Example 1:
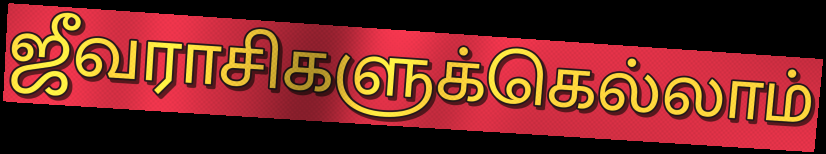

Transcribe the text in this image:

ஜீவராசிகளுக்கெல்லாம்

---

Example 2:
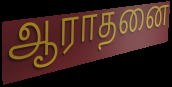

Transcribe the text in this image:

ஆராதனை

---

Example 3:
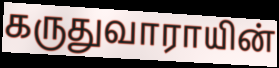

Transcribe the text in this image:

கருதுவாராயின்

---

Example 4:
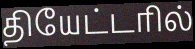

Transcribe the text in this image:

தியேட்டரில்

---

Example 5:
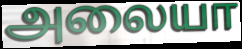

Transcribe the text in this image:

அலையா